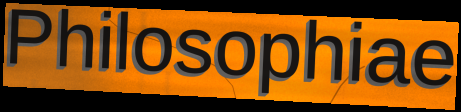
Philosophiae